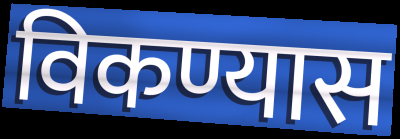
विकण्यास